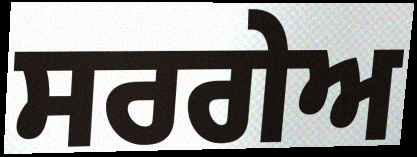
ਸਰਗੇਅ